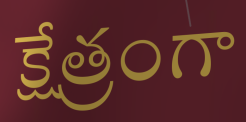
క్షేత్రంగా